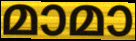
മാമാ